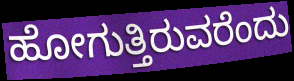
ಹೋಗುತ್ತಿರುವರೆಂದು